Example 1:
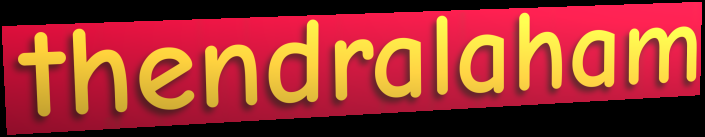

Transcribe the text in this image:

thendralaham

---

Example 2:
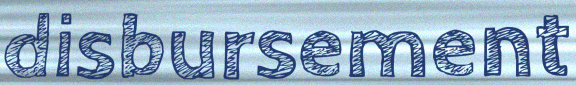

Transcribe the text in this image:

disbursement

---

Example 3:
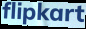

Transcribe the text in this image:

flipkart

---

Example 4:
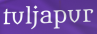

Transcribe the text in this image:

tuljapur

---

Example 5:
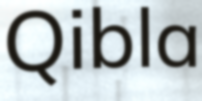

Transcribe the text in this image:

Qibla